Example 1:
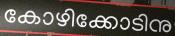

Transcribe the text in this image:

കോഴിക്കോടിനു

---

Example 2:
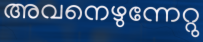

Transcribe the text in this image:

അവനെഴുന്നേറ്റു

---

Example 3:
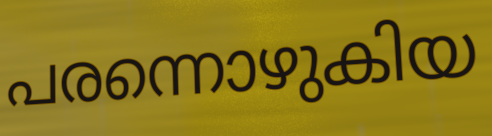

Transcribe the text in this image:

പരന്നൊഴുകിയ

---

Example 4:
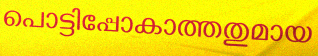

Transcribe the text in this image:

പൊട്ടിപ്പോകാത്തതുമായ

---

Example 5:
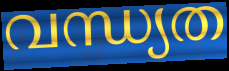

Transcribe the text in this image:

വന്ധ്യത